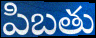
పిబతు